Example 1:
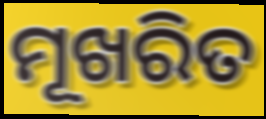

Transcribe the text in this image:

ମୂଖରିତ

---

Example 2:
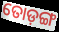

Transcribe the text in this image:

ତୋଡ଼ଙ୍ଗ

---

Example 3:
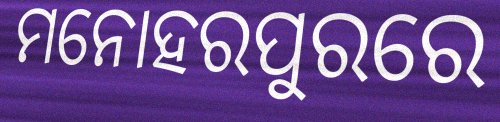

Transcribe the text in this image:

ମନୋହରପୁରରେ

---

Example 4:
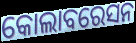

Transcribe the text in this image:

କୋଲାବରେସନ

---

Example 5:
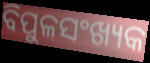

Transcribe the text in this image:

ବିପୁଳସଂଖ୍ୟକ